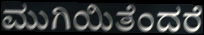
ಮುಗಿಯಿತೆಂದರೆ